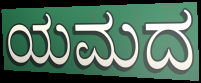
ಯಮದ